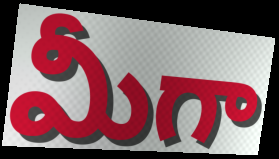
మీగా